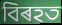
বিৰহত